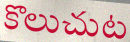
కొలుచుట